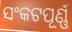
ସଂକଟପୂର୍ଣ୍ଣ